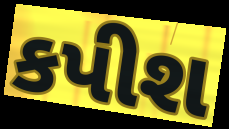
કપીશ